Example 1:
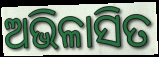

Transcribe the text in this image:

ଅଭିଳାସିତ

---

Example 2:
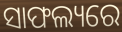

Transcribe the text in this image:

ସାଫଲ୍ୟରେ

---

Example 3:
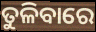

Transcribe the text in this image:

ତୁଳିବାରେ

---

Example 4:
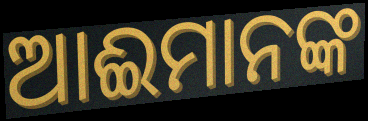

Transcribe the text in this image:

ଆଈମାନଙ୍କ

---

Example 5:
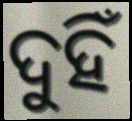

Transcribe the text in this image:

ଦୁହିଁ